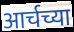
आर्चच्या